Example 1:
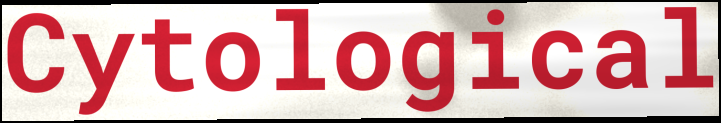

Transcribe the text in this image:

Cytological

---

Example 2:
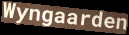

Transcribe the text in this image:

Wyngaarden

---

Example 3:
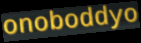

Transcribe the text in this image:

onoboddyo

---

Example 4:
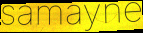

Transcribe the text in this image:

samayne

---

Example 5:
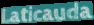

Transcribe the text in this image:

Laticauda